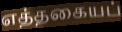
எத்தகையப்